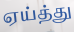
ஏய்த்து